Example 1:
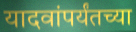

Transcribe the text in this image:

यादवांपर्यंतच्या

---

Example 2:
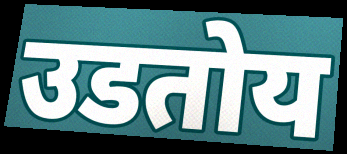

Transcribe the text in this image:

उडतोय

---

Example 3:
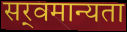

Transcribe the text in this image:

सर्वमान्यता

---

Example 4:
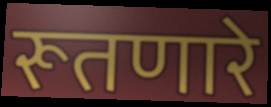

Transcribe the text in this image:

रूतणारे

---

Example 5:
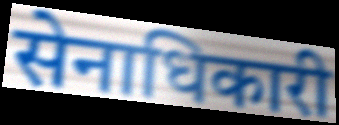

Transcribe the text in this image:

सेनाधिकारी